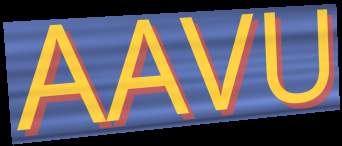
AAVU